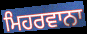
ਮਿਹਰਵਾਨਾ